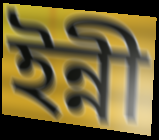
ইন্নী